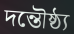
দন্তৌষ্ঠ্য